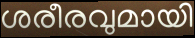
ശരീരവുമായി